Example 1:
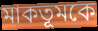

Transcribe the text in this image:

মাকতূমকে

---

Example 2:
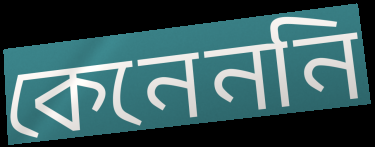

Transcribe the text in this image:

কেনেননি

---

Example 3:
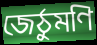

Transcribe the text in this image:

জেঠুমণি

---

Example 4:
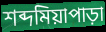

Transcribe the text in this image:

শব্দমিয়াপাড়া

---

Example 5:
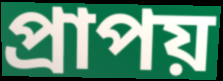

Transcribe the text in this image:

প্রাপয়